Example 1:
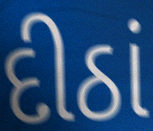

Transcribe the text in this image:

દીઠાં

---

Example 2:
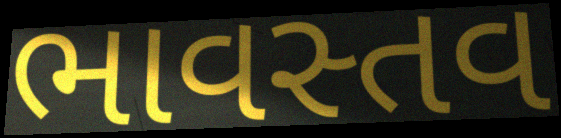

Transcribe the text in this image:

ભાવસ્તવ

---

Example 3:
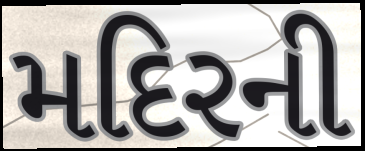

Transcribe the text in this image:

મદિરની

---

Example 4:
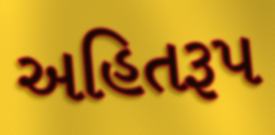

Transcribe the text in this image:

અહિતરૂપ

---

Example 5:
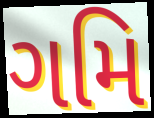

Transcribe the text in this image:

ગમિ